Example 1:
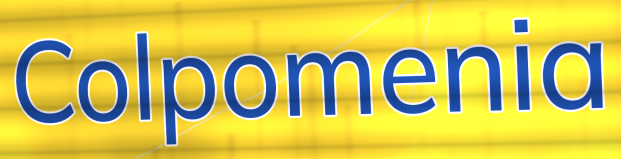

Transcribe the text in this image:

Colpomenia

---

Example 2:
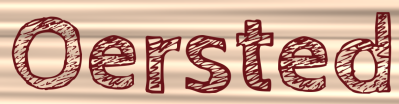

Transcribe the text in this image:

Oersted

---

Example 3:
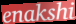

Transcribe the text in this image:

enakshi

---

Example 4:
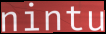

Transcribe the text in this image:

nintu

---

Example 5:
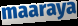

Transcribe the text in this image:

maaraya